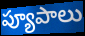
ప్యూపాలు